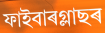
ফাইবাৰগ্লাছৰ